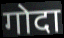
गोदा